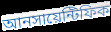
আনসায়েন্টিফিক